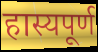
हास्यपूर्ण